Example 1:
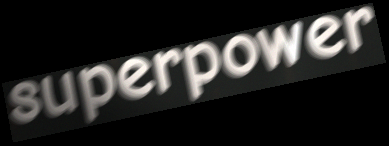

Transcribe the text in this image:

superpower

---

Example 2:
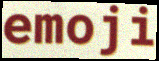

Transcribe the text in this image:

emoji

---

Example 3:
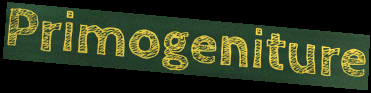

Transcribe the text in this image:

Primogeniture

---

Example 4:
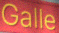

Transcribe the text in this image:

Galle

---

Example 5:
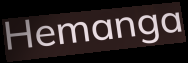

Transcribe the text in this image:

Hemanga